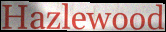
Hazlewood